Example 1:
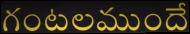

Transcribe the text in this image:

గంటలముందే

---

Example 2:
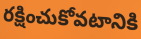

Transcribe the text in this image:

రక్షించుకోవటానికి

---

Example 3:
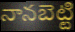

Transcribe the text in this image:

నానబెట్టి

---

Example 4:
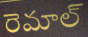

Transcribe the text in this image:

రెమాల్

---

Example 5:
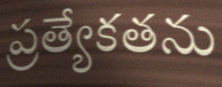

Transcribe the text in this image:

ప్రత్యేకతను